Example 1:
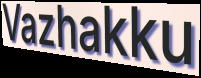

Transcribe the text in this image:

Vazhakku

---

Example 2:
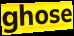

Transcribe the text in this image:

ghose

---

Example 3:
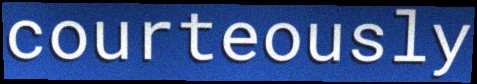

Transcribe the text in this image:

courteously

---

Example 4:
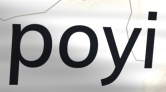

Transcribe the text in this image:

poyi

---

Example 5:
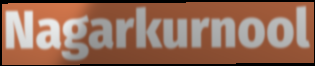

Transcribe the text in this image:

Nagarkurnool